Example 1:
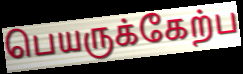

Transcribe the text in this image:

பெயருக்கேற்ப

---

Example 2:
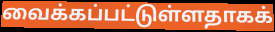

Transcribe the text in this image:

வைக்கப்பட்டுள்ளதாகக்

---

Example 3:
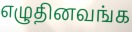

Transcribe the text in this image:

எழுதினவங்க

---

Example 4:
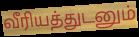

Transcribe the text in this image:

வீரியத்துடனும்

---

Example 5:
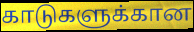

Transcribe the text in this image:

காடுகளுக்கான